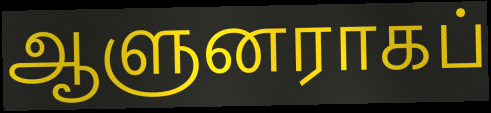
ஆளுனராகப்